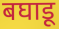
बघाडू